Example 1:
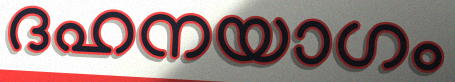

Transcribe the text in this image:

ദഹനയാഗം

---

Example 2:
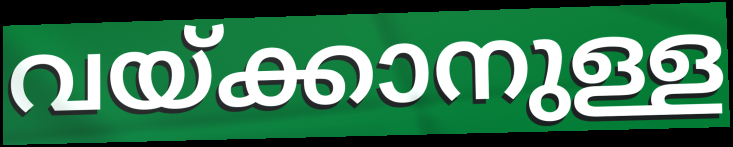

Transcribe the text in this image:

വയ്ക്കാനുള്ള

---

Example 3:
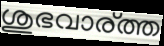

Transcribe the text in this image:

ശുഭവാര്ത്ത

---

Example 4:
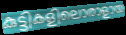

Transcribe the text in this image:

കുട്ടികളിലൊരാളായ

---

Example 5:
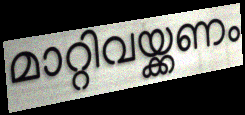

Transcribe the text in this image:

മാറ്റിവയ്ക്കണം